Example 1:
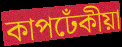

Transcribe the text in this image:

কাপঢেঁকীয়া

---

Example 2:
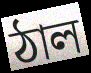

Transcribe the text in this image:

ঠাল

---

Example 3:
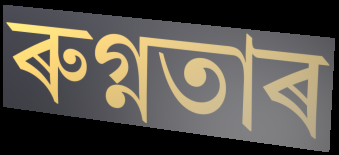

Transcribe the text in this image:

ৰুগ্নতাৰ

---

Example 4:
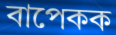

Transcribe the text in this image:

বাপেকক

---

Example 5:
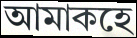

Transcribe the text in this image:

আমাকহে